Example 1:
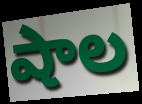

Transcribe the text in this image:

షాల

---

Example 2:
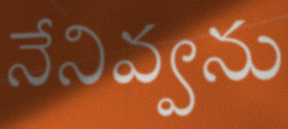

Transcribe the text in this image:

నేనివ్వను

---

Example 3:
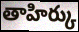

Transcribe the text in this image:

తాహిర్కు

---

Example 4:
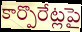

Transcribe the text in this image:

కార్పొరేట్లపై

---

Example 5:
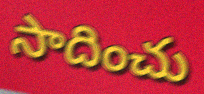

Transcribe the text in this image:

సాదించు